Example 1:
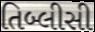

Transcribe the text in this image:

તિબ્લીસી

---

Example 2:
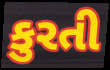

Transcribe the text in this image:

કુરતી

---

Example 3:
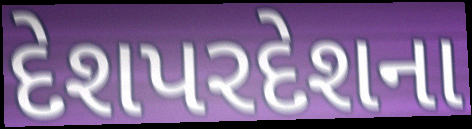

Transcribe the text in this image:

દેશપરદેશના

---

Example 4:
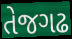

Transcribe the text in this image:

તેજગઢ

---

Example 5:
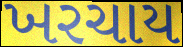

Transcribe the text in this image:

ખરચાય